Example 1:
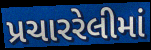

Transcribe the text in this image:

પ્રચારરેલીમાં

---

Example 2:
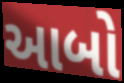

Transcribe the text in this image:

આબો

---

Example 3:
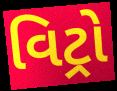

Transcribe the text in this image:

વિટ્રો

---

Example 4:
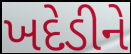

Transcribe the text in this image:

ખદેડીને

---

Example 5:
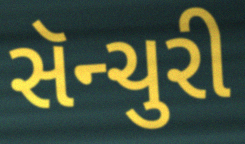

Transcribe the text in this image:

સૅન્ચુરી